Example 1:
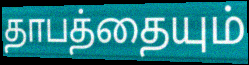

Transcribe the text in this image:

தாபத்தையும்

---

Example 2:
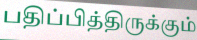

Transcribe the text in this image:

பதிப்பித்திருக்கும்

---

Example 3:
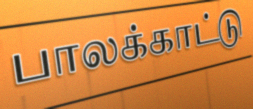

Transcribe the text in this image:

பாலக்காட்டு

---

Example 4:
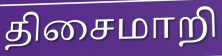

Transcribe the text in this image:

திசைமாறி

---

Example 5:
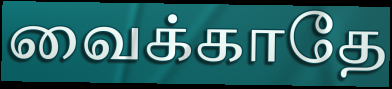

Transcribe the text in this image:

வைக்காதே